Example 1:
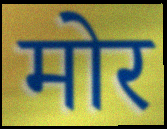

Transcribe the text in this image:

मोर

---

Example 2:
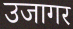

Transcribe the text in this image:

उजागर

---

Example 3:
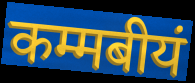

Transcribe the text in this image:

कम्मबीयं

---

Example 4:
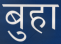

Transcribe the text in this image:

बुहा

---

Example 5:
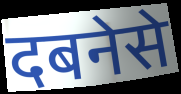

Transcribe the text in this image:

दबनेसे